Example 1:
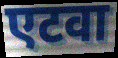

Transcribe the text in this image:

एटवा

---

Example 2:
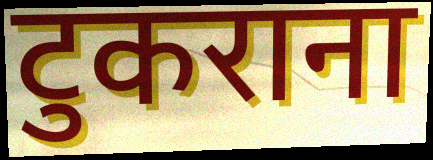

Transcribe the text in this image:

टुकराना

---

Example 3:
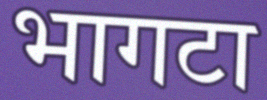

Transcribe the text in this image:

भागटा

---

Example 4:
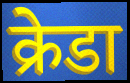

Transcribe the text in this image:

क्रेडा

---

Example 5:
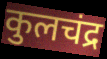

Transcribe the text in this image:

कुलचंद्र